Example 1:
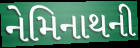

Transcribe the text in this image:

નેમિનાથની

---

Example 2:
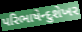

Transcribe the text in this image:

પરિભાષેન્દુશેખર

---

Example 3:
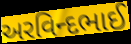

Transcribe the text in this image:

અરવિન્દભાઈ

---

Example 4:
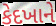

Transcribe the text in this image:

કેદખાને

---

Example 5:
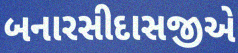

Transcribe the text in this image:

બનારસીદાસજીએ